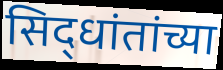
सिद्धांतांच्या